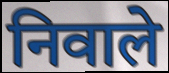
निवाले